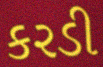
કરડી